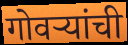
गोवऱ्यांची